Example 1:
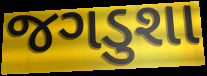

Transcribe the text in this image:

જગડુશા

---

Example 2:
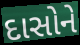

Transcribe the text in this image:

દાસોને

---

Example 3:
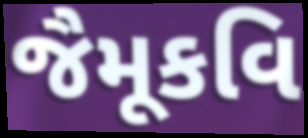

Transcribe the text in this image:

જૈમૂકવિ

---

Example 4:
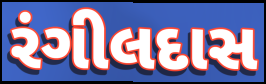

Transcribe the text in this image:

રંગીલદાસ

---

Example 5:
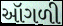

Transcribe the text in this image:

ઑગળી